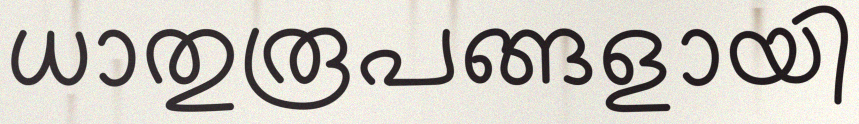
ധാതുരൂപങ്ങളായി